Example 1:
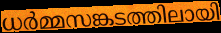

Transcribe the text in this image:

ധർമ്മസങ്കടത്തിലായി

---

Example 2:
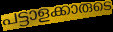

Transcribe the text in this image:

പട്ടാളക്കാരുടെ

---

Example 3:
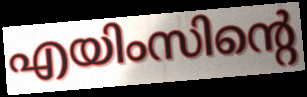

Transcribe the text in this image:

എയിംസിന്റെ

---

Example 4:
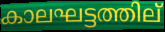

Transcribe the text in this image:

കാലഘട്ടത്തില്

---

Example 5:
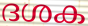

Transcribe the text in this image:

ദശക